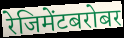
रेजिमेंटबरोबर